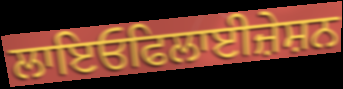
ਲਾਇਓਫਿਲਾਈਜ਼ੇਸ਼ਨ